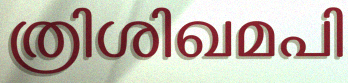
ത്രിശിഖമപി